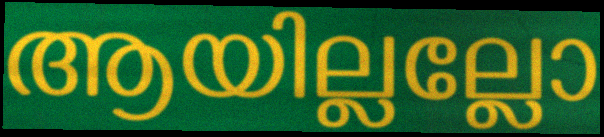
ആയില്ലല്ലോ